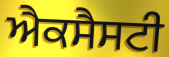
ਐਕਸੈਸਟੀ